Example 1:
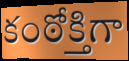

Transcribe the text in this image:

కంఠోక్తిగా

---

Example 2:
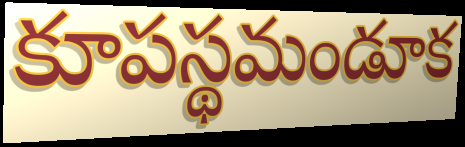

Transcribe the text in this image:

కూపస్థమండూక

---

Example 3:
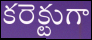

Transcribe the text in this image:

కరెక్టుగా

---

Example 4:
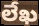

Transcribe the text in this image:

లేఖ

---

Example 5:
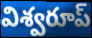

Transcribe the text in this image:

విశ్వరూప్